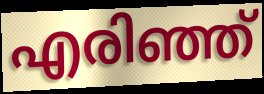
എരിഞ്ഞ്